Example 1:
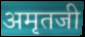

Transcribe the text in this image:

अमृतजी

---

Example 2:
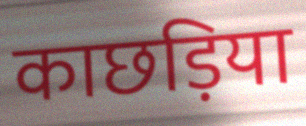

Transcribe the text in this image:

काछड़िया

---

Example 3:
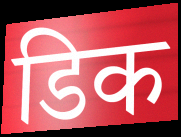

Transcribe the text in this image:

डिक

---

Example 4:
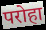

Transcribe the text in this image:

परोहा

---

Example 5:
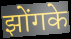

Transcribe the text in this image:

झोंगके